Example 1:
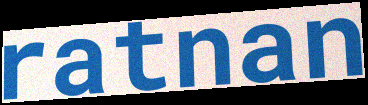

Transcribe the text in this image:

ratnan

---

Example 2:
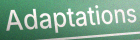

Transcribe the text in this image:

Adaptations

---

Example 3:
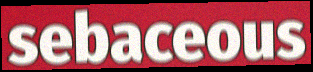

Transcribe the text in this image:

sebaceous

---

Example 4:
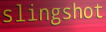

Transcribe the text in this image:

slingshot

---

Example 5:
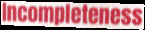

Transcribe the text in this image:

Incompleteness